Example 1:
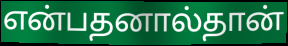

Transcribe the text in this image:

என்பதனால்தான்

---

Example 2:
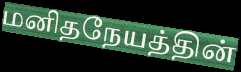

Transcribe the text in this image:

மனிதநேயத்தின்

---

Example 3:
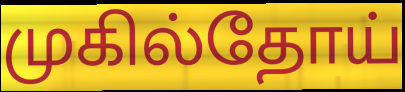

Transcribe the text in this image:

முகில்தோய்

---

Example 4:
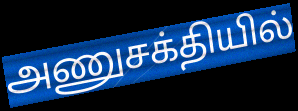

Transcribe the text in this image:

அணுசக்தியில்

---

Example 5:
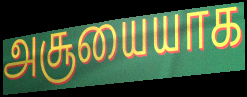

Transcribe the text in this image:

அசூயையாக